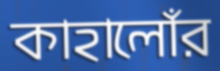
কাহালোঁর